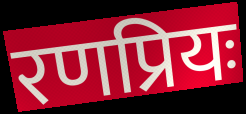
रणप्रियः